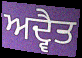
ਅਦ੍ਵੈਤ